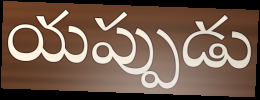
యప్పుడు